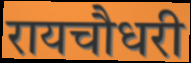
रायचौधरी